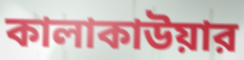
কালাকাউয়ার